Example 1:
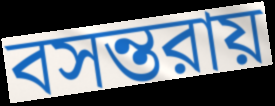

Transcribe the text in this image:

বসন্তরায়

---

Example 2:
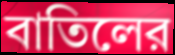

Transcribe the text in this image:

বাতিলের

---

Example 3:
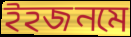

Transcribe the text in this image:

ইহজনমে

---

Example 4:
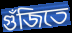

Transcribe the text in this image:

গুঁজিতে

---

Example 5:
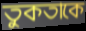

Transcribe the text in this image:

তুকতাকে